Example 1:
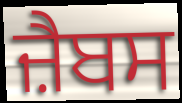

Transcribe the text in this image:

ਜ਼ੈਬਸ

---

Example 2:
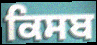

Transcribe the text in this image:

ਕਿਸਬ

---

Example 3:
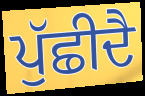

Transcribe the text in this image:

ਪੁੱਛੀਦੈ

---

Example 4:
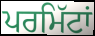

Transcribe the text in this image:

ਪਰਮਿੱਟਾਂ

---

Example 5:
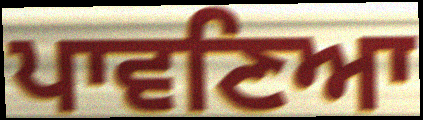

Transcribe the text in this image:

ਪਾਵਣਿਆ